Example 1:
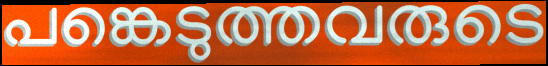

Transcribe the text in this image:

പങ്കെടുത്തവരുടെ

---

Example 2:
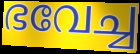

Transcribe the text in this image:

ഭവേച്ച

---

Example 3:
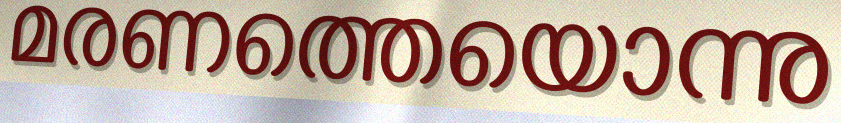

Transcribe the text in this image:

മരണത്തെയൊന്നു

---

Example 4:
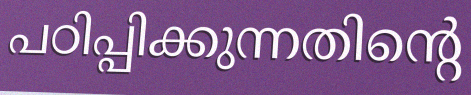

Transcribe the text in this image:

പഠിപ്പിക്കുന്നതിന്റെ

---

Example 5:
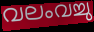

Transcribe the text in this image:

വലംവച്ചു